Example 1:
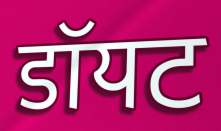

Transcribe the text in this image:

डॉयट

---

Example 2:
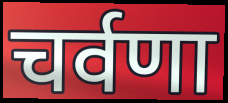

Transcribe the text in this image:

चर्वणा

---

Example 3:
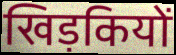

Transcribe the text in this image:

खिड़कियों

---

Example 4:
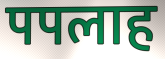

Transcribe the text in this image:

पपलाह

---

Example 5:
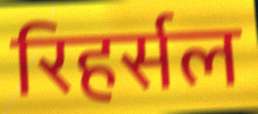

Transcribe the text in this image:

रिहर्सल